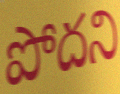
పోదని